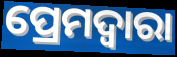
ପ୍ରେମଦ୍ୱାରା